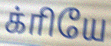
க்ரியே